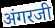
अंगरजी